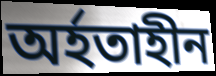
অৰ্হতাহীন